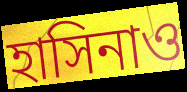
হাসিনাও